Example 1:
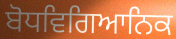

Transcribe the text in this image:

ਬੋਧਵਿਗਿਆਨਿਕ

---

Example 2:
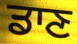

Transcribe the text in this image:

ਡਾਣ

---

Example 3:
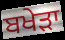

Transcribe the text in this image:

ਬਖੇੜਾ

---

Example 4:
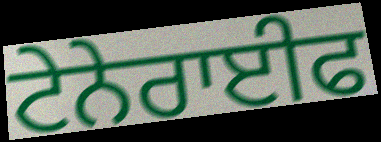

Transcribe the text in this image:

ਟੇਨੇਰਾਈਫ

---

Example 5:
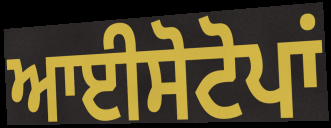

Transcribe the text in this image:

ਆਈਸੋਟੋਪਾਂ